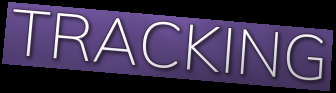
TRACKING